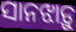
ସାନଝାଡ଼ୁ